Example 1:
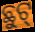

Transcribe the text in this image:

ଛୁଟ୍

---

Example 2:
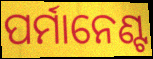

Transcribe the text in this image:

ପର୍ମାନେଣ୍ଟ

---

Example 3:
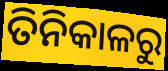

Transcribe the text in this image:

ତିନିକାଳରୁ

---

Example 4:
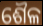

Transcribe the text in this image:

ଶୈଳ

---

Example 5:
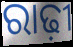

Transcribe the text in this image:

ରାଢ଼ୀ